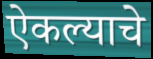
ऐकल्याचे